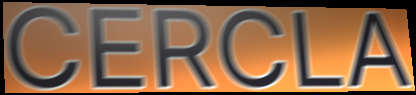
CERCLA